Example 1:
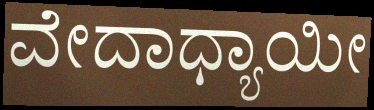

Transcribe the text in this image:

ವೇದಾಧ್ಯಾಯೀ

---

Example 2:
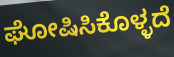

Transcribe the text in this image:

ಘೋಷಿಸಿಕೊಳ್ಳದೆ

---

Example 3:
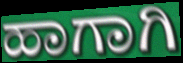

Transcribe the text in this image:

ಹಾಗಾಗಿ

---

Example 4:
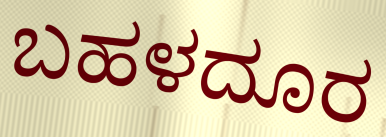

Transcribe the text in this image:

ಬಹಳದೂರ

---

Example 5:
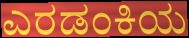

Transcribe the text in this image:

ಎರಡಂಕಿಯ